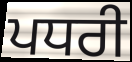
ਪਧਰੀ